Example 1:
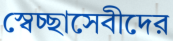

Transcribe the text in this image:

স্বেচ্ছাসেবীদের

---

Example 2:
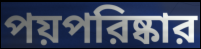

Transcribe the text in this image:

পয়পরিষ্কার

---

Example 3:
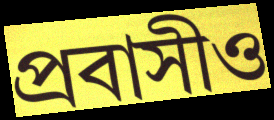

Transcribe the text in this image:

প্রবাসীও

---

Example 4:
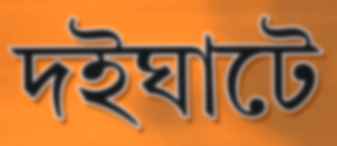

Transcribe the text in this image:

দইঘাটে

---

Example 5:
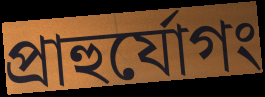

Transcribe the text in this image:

প্রাহুর্যোগং